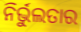
ନିର୍ଭୁଲତାର